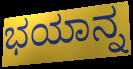
ಭಯಾನ್ನ